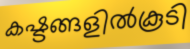
കഷ്ടങ്ങളിൽകൂടി